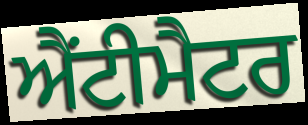
ਐਂਟੀਮੈਟਰ